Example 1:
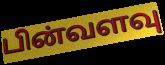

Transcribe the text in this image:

பின்வளவு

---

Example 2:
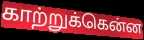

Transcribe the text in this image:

காற்றுக்கென்ன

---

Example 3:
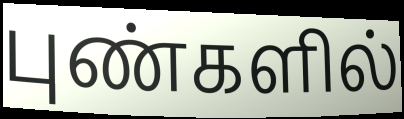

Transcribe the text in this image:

புண்களில்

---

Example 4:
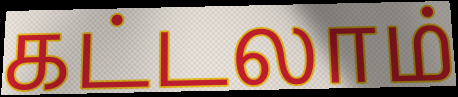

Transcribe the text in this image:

கட்டலாம்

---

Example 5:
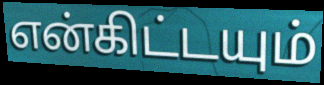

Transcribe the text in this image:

என்கிட்டயும்